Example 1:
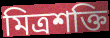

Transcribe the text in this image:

মিত্রশক্তি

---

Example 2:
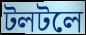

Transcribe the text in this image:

টলটলে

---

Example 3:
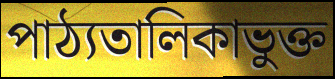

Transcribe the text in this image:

পাঠ্যতালিকাভুক্ত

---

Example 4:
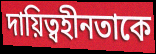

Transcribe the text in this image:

দায়িত্বহীনতাকে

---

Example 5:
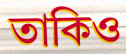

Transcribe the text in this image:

তাকিও